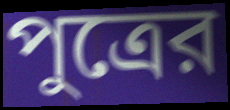
পুত্রের